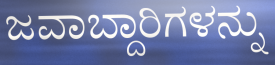
ಜವಾಬ್ದಾರಿಗಳನ್ನು